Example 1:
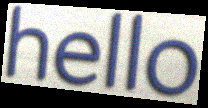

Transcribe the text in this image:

hello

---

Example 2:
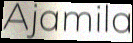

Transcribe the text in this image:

Ajamila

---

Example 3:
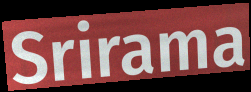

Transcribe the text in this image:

Srirama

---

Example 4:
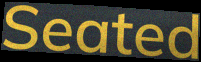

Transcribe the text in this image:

Seated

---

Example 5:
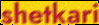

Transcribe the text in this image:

shetkari